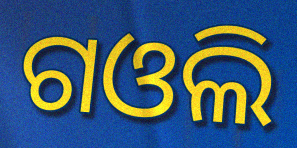
ଗଓଲି